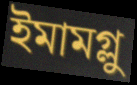
ইমামগ্লু